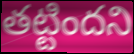
తట్టిందని